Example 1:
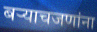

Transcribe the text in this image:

बऱ्याचजणांना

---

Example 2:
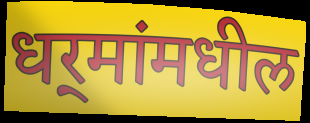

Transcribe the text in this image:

धर्मांमधील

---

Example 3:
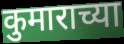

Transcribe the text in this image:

कुमाराच्या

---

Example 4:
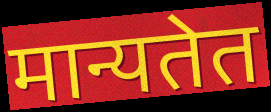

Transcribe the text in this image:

मान्यतेत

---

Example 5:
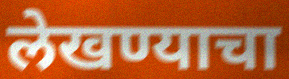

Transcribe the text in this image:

लेखण्याचा